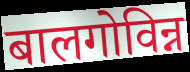
बालगोविन्न